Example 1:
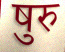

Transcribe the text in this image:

षुरु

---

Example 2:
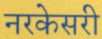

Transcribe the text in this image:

नरकेसरी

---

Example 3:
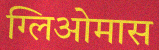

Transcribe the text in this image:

ग्लिओमास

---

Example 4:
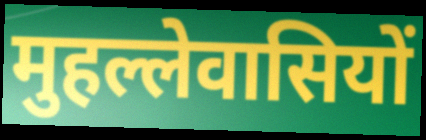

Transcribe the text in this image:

मुहल्लेवासियों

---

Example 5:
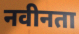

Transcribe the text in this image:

नवीनता